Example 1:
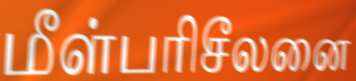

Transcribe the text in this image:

மீள்பரிசீலனை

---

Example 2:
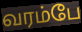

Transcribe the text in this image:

வரம்பே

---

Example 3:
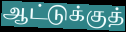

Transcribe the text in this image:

ஆட்டுக்குத்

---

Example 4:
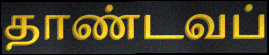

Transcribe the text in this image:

தாண்டவப்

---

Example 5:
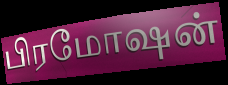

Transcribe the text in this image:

பிரமோஷன்